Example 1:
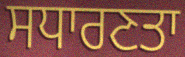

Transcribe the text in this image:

ਸਧਾਰਣਤਾ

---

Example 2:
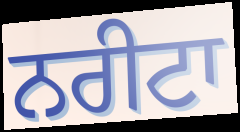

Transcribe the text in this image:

ਨਰੀਟਾ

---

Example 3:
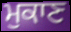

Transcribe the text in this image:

ਮੁਕਾਣ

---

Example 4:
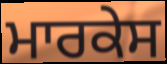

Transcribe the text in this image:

ਮਾਰਕੇਸ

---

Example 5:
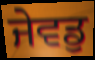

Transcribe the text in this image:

ਜੇਵਡੁ